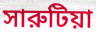
সারুটিয়া